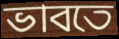
ভাবতে